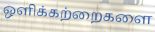
ஒளிக்கற்றைகளை